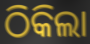
ଠିକିଲା